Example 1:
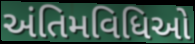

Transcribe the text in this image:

અંતિમવિધિઓ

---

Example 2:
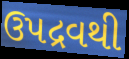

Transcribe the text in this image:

ઉપદ્રવથી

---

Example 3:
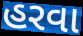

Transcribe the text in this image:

હરવા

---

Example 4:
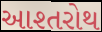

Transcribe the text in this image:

આશ્તરોથ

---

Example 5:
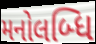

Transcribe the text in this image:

મનોલબ્ધિ